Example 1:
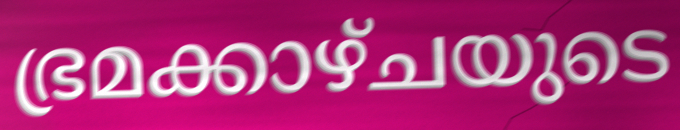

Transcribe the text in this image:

ഭ്രമക്കാഴ്ചയുടെ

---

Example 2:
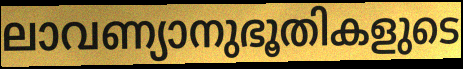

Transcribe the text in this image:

ലാവണ്യാനുഭൂതികളുടെ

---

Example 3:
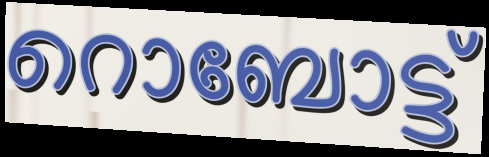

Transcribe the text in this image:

റൊബോട്ട്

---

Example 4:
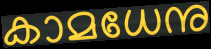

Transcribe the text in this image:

കാമധേനു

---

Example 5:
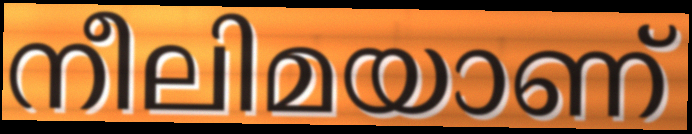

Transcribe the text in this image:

നീലിമയാണ്